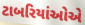
ટાબરિયાંઓએ